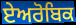
ਏਅਰੋਬਿਕ